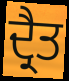
ਦ੍ਰੈਤ